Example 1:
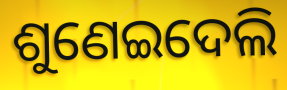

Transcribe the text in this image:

ଶୁଣେଇଦେଲି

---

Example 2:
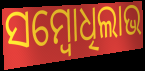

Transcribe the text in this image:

ସମ୍ବୋଧିଲାଭ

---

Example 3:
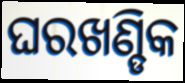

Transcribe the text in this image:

ଘରଖଣ୍ଡିକ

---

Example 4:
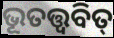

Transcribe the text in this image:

ଭୂତତ୍ତ୍ୱବିତ୍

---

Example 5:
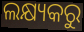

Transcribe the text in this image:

ଲକ୍ଷ୍ୟକରୁ